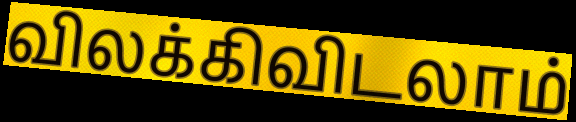
விலக்கிவிடலாம்